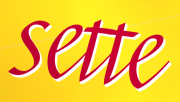
sette